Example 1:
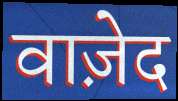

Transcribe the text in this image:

वाज़ेद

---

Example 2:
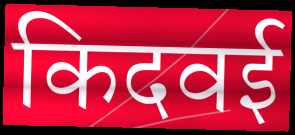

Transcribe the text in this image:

किदवई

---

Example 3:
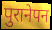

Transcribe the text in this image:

पुरानेपन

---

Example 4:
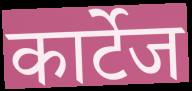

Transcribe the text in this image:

कार्टेज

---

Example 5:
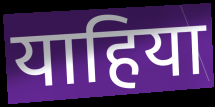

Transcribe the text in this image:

याहिया